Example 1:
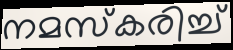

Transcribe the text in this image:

നമസ്കരിച്ച്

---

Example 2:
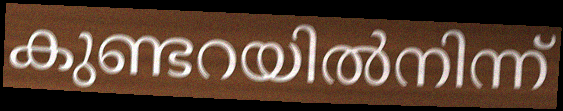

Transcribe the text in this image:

കുണ്ടറയിൽനിന്ന്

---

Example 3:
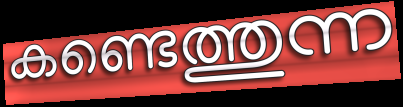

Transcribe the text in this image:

കണ്ടെത്തുന്ന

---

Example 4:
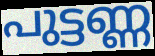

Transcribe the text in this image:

പുട്ടണ്ണ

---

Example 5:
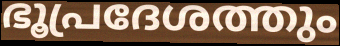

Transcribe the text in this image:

ഭൂപ്രദേശത്തും